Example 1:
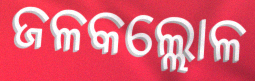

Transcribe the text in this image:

ଜଳକଲ୍ଲୋଳ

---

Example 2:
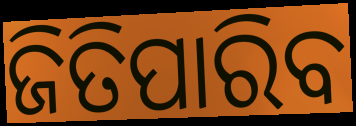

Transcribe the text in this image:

ଜିତିପାରିବ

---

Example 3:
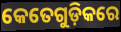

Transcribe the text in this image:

କେତେଗୁଡ଼ିକରେ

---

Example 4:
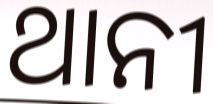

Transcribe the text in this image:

ଥାନୀ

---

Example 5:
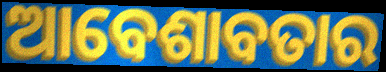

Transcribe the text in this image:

ଆବେଶାବତାର